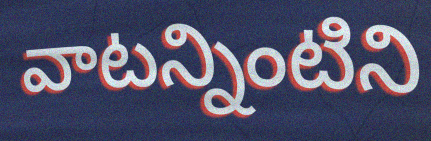
వాటన్నింటిని